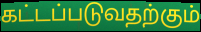
கட்டப்படுவதற்கும்